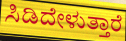
ಸಿಡಿದೇಳುತ್ತಾರೆ